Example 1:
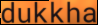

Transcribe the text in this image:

dukkha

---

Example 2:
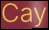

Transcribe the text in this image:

Cay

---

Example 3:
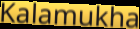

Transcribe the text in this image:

Kalamukha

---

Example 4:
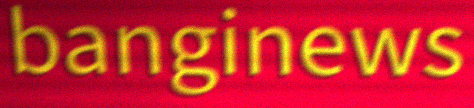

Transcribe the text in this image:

banginews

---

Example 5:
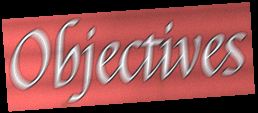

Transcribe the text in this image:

Objectives